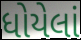
ધોયેલાં